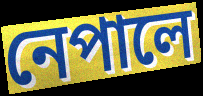
নেপালে